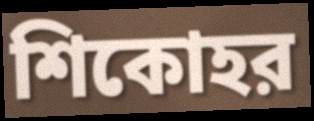
শিকোহর